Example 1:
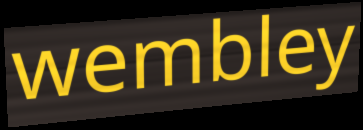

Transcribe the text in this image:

wembley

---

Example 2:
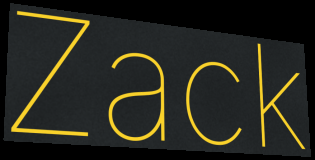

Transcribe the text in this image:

Zack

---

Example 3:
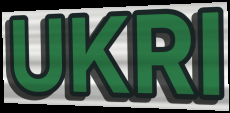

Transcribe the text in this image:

UKRI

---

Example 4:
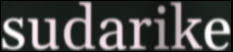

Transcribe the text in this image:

sudarike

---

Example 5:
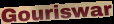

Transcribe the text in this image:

Gouriswar